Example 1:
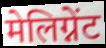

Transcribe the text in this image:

मेलिग्नेंट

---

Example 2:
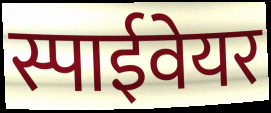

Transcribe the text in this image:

स्पाईवेयर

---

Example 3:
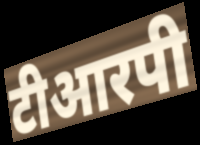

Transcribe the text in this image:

टीआरपी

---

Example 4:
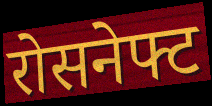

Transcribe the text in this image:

रोसनेफ्ट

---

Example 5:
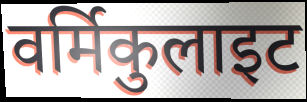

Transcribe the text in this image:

वर्मिकुलाइट